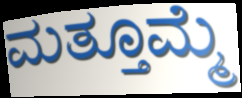
ಮತ್ತೂಮ್ಮೆ